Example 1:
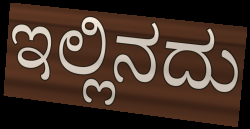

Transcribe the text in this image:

ಇಲ್ಲಿನದು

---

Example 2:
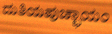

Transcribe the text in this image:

ದುತಿಯಪುಚ್ಛಾಯಂ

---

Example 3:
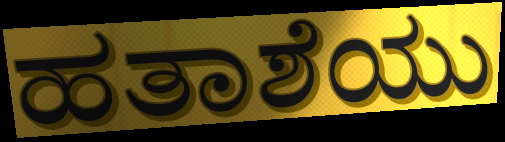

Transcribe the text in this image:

ಹತಾಶೆಯು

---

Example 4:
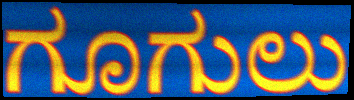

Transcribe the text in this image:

ಗೂಗುಲು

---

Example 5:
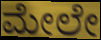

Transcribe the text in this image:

ಮೇಲೇ